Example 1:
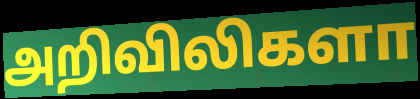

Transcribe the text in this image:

அறிவிலிகளா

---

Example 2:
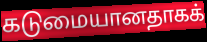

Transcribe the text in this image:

கடுமையானதாகக்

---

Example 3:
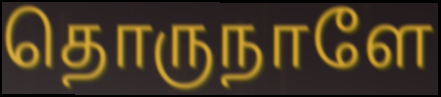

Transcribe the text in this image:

தொருநாளே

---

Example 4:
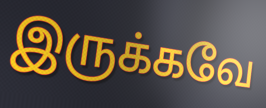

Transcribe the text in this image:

இருக்கவே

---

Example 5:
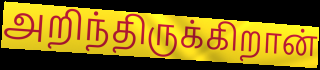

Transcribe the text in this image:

அறிந்திருக்கிறான்